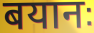
बयानः